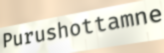
Purushottamne